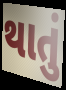
થાતું